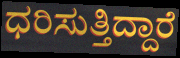
ಧರಿಸುತ್ತಿದ್ದಾರೆ